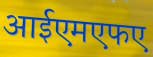
आईएमएफए